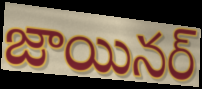
జాయినర్